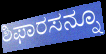
ಶಿಫಾರಸನ್ನೂ